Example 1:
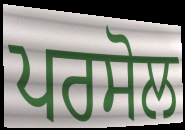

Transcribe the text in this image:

ਪਰਸੋਲ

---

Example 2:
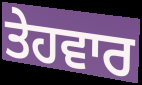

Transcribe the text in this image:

ਤੇਹਵਾਰ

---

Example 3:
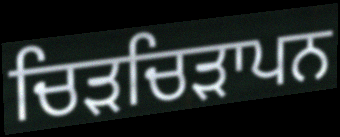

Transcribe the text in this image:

ਚਿੜਚਿੜਾਪਨ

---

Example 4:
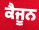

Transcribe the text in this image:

ਕੈਜੂਨ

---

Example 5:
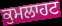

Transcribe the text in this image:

ਕੁਮਲਾਹਟ